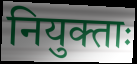
नियुक्ताः